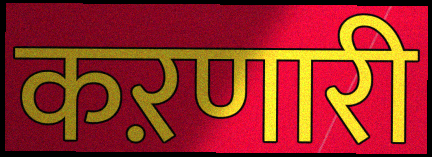
कऱणारी